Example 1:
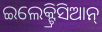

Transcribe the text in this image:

ଇଲେକ୍ଟ୍ରିସିଆନ୍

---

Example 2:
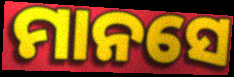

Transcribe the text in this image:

ମାନସେ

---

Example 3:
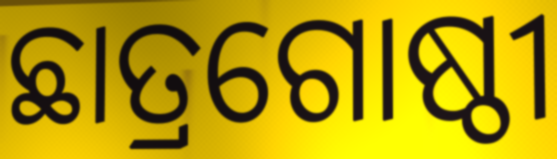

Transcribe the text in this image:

ଛାତ୍ରଗୋଷ୍ଠୀ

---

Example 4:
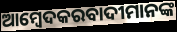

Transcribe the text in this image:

ଆମ୍ବେଦକରବାଦୀମାନଙ୍କ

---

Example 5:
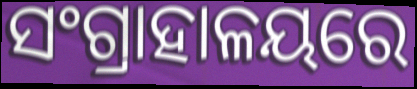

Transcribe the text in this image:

ସଂଗ୍ରାହାଳୟରେ